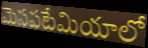
మెసపటేమియాలో